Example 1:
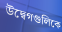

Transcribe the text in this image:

উদ্বেগগুলিকে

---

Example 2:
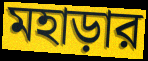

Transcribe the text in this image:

মহাড়ার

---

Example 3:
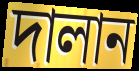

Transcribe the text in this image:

দালান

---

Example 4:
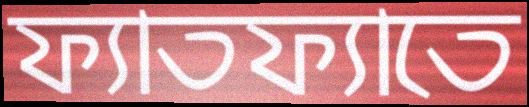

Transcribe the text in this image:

ফ্যাতফ্যাতে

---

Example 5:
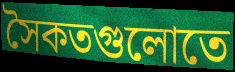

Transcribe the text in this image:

সৈকতগুলোতে